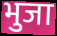
भुजा